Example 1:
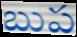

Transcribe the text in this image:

బుప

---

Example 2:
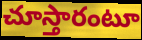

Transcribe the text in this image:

చూస్తారంటూ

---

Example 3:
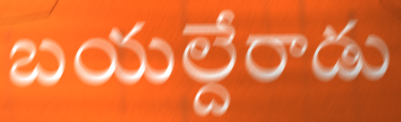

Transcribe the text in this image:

బయల్దేరాడు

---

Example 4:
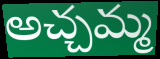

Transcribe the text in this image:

అచ్చమ్మ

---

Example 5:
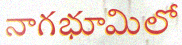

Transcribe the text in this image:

నాగభూమిలో